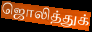
ஜொலித்துக்